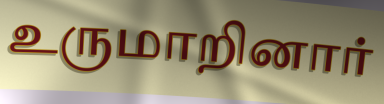
உருமாறினார்